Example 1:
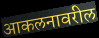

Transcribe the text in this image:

आकलनावरील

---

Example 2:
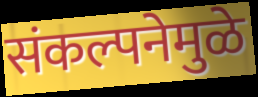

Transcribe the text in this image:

संकल्पनेमुळे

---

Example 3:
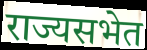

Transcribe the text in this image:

राज्यसभेत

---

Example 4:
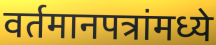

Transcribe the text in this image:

वर्तमानपत्रांमध्ये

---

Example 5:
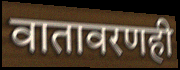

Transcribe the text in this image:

वातावरणही